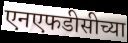
एनएफडीसीच्या